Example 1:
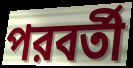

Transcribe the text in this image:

পরবর্তী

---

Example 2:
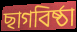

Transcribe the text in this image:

ছাগবিষ্ঠা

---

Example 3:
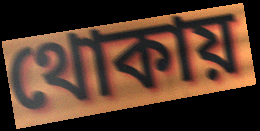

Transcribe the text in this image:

থোকায়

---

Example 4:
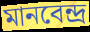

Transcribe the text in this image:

মানবেন্দ্র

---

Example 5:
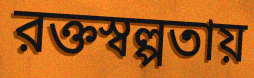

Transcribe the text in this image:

রক্তস্বল্পতায়